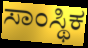
ಸಾಂಸ್ಥಿಕ